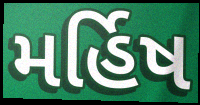
મર્હિષ